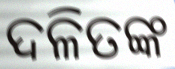
ଦଳିତଙ୍କ